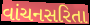
વાંચનસરિતા